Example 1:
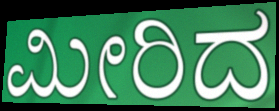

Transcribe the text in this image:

ಮೀರಿದ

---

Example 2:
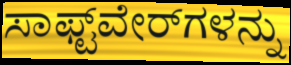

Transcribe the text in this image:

ಸಾಫ್ಟ್‌ವೇರ್‌ಗಳನ್ನು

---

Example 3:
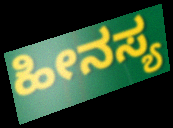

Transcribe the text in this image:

ಹೀನಸ್ಯ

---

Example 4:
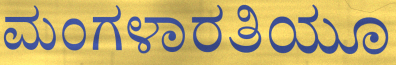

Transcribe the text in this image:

ಮಂಗಳಾರತಿಯೂ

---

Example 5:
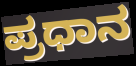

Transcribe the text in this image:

ಪ್ರಧಾನ